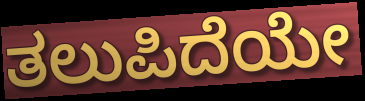
ತಲುಪಿದೆಯೇ